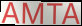
AMTA